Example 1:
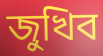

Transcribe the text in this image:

জুখিব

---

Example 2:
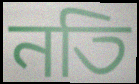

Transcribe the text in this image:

নতি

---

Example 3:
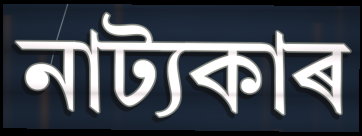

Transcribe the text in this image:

নাট্যকাৰ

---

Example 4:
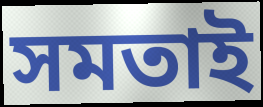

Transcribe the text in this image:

সমতাই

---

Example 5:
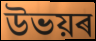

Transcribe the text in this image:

উভয়ৰ